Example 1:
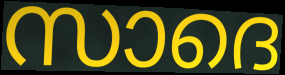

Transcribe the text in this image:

സാദെ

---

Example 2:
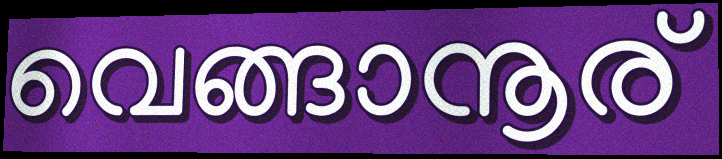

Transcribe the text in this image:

വെങ്ങാനൂര്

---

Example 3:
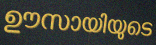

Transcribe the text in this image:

ഊസായിയുടെ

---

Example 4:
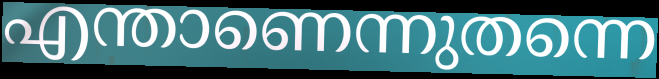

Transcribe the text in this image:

എന്താണെന്നുതന്നെ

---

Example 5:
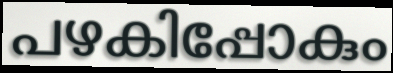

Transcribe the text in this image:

പഴകിപ്പോകും